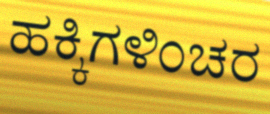
ಹಕ್ಕಿಗಳಿಂಚರ